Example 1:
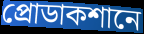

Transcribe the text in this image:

প্রোডাকশানে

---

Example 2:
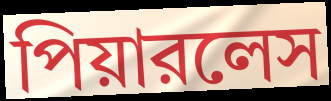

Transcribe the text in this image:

পিয়ারলেস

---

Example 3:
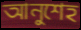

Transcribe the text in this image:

আনুশেহ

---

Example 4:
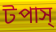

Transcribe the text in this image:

টপাস্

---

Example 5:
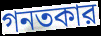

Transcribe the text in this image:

গনতকার